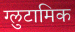
ग्लुटामिक